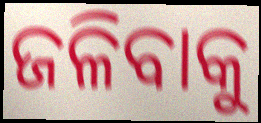
ଜଳିବାକୁ